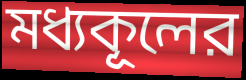
মধ্যকূলের